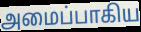
அமைப்பாகிய